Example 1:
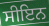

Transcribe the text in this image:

ਸੀਇਨ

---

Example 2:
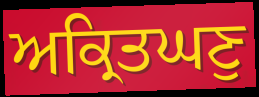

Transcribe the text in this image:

ਅਕ੍ਰਿਤਘਣੁ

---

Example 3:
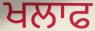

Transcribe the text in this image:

ਖਲਾਫ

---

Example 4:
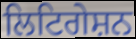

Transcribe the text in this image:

ਲਿਟਿਗੇਸ਼ਨ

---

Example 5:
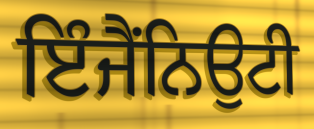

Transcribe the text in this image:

ਇੰਜੈਂਨਿਉਟੀ